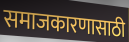
समाजकारणासाठी